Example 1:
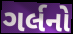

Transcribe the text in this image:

ગર્લનો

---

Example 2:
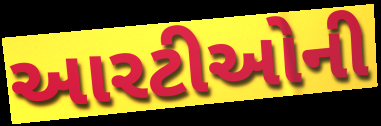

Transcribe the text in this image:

આરટીઓની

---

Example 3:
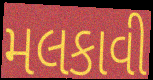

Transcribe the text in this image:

મલકાવી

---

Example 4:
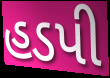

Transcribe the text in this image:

હડપી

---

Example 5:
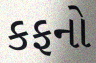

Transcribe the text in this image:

કફનો